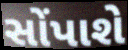
સોંપાશે